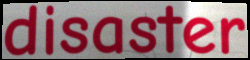
disaster